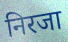
निरजा